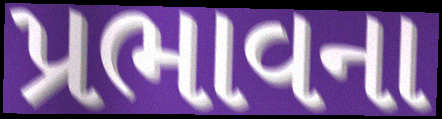
પ્રભાવના